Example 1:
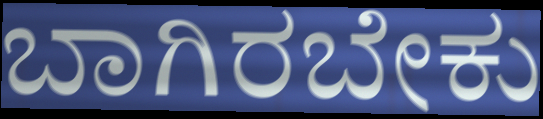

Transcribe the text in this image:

ಬಾಗಿರಬೇಕು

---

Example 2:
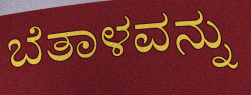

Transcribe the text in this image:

ಬೆತಾಳವನ್ನು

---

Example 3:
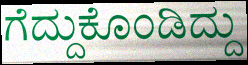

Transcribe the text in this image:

ಗೆದ್ದುಕೊಂಡಿದ್ದು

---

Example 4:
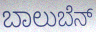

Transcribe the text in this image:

ಬಾಲುಬೆನ್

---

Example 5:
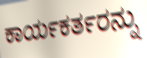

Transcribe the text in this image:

ಕಾರ್ಯಕರ್ತರನ್ನು